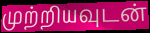
முற்றியவுடன்